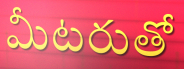
మీటరుతో